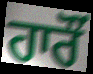
ਹਾਰੌਂ